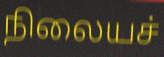
நிலையச்